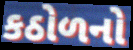
કઠોળનો